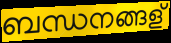
ബന്ധനങ്ങള്